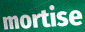
mortise